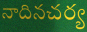
నాదినచర్య